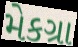
મેકગ્રા